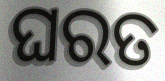
ଘରତ